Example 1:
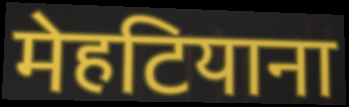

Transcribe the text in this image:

मेहटियाना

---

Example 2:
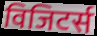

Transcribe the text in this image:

विजिटर्स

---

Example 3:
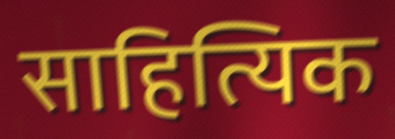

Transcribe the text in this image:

साहित्यिक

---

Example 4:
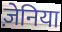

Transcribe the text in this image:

ज़ेनिया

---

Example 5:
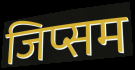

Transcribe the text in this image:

जिप्सम